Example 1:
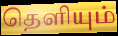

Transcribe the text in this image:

தெளியும்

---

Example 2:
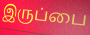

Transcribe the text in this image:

இருப்பை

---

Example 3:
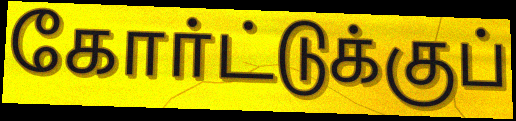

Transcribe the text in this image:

கோர்ட்டுக்குப்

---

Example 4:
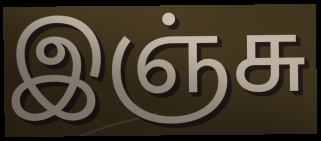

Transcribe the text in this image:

இஞ்சு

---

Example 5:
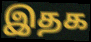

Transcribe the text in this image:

இதக